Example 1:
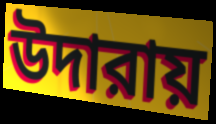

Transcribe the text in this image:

উদারায়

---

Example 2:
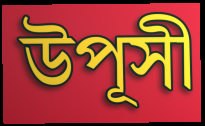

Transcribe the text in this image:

উপূসী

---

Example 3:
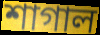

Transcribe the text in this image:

শাগাল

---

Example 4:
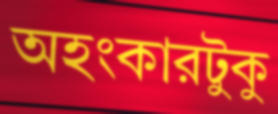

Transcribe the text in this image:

অহংকারটুকু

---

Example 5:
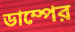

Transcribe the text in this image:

ডাম্পের